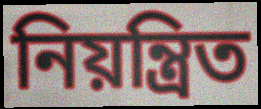
নিয়ন্ত্ৰিত